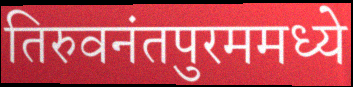
तिरुवनंतपुरममध्ये